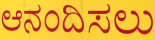
ಆನಂದಿಸಲು